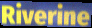
Riverine